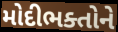
મોદીભક્તોને